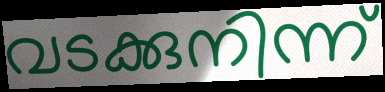
വടക്കുനിന്ന്